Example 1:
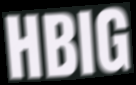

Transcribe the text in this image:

HBIG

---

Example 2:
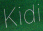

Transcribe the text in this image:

Kidi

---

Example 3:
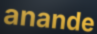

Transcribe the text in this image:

anande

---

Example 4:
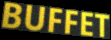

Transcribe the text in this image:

BUFFET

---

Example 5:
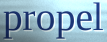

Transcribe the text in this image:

propel